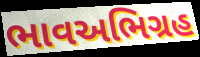
ભાવઅભિગ્રહ